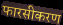
फारसीकरण